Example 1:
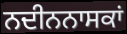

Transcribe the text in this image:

ਨਦੀਨਨਾਸਕਾਂ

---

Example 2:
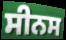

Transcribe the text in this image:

ਸੀਨਸ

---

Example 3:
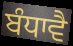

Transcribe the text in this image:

ਬੰਧਾਵੈ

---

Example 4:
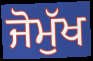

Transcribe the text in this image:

ਜੋਮੁੱਖ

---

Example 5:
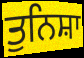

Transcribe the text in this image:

ਤੁਨਿਸ਼ਾ